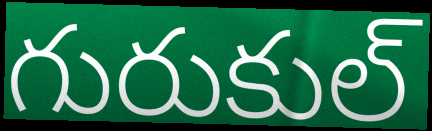
గురుకుల్